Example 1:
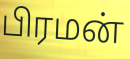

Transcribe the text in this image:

பிரமன்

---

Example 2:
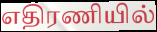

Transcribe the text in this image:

எதிரணியில்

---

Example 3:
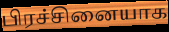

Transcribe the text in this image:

பிரச்சினையாக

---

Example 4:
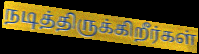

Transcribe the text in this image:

நடித்திருக்கிறீர்கள்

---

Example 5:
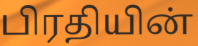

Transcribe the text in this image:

பிரதியின்